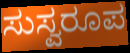
ಸುಸ್ವರೂಪ